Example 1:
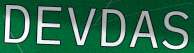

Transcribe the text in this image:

DEVDAS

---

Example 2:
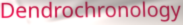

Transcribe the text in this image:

Dendrochronology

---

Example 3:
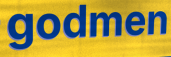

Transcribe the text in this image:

godmen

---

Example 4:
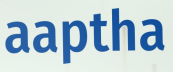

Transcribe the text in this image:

aaptha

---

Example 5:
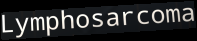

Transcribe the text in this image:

Lymphosarcoma